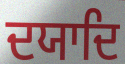
ਦਯਾਦਿ